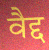
वैद्द